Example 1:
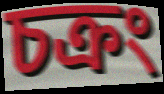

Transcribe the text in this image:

চক্রং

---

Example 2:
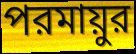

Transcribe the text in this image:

পরমায়ুর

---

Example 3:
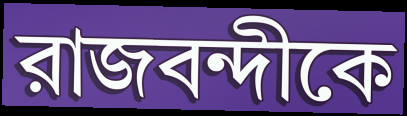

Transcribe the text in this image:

রাজবন্দীকে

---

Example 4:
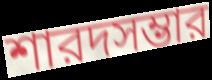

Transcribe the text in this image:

শারদসম্ভার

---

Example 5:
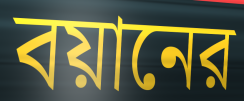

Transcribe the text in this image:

বয়ানের